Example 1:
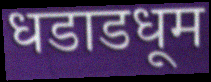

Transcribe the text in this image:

धडाडधूम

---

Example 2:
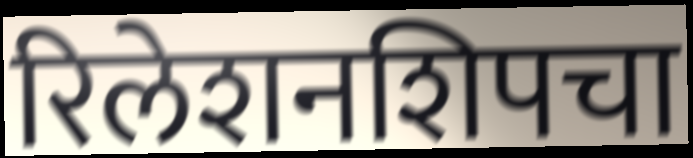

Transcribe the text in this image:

रिलेशनशिपचा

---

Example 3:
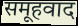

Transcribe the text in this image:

समूहवाद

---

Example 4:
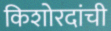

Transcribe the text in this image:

किशोरदांची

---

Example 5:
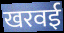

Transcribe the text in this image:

खरवई